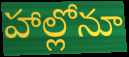
హాల్లోనూ